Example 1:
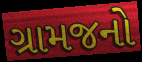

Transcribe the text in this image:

ગ્રામજનો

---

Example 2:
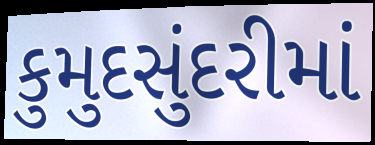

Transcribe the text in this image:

કુમુદસુંદરીમાં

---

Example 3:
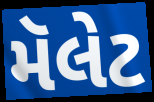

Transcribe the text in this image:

મૅલેટ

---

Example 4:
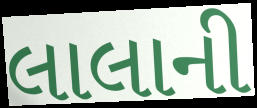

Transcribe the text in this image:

લાલાની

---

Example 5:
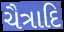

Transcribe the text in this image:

ચૈત્રાદિ